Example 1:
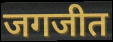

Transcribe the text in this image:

जगजीत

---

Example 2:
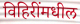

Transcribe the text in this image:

विहिरींमधील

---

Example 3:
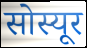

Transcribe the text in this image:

सोस्यूर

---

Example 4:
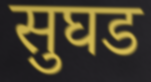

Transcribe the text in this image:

सुघड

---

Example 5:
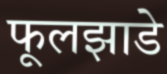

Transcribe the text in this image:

फूलझाडे